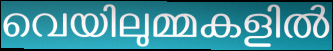
വെയിലുമ്മകളിൽ